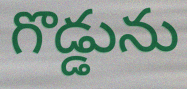
గొడ్డును